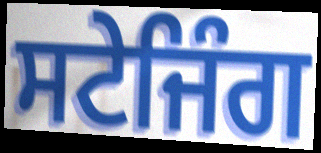
ਸਟੇਜਿੰਗ